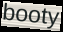
booty